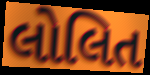
લોલિત